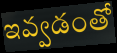
ఇవ్వడంతో